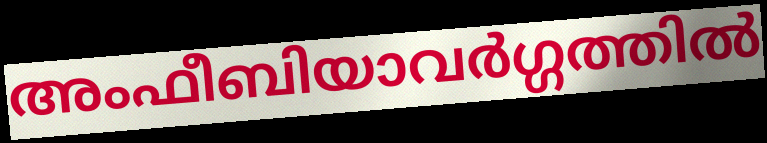
അംഫീബിയാവർഗ്ഗത്തിൽ